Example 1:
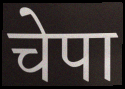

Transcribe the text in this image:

चेपा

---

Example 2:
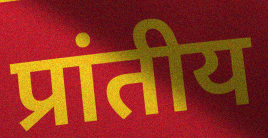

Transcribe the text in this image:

प्रांतीय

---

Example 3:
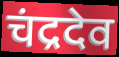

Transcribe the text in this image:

चंद्रदेव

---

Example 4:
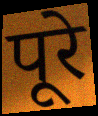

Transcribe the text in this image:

पूरे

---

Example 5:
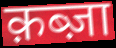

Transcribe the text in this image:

क़ब्ज़ा